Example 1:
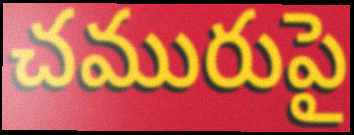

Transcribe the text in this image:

చమురుపై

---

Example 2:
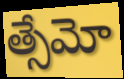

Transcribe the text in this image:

త్సేమో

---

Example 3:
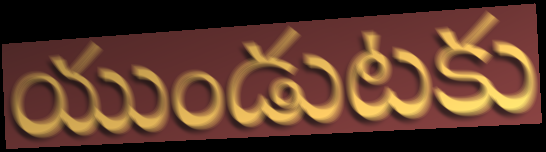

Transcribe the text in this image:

యుండుటకు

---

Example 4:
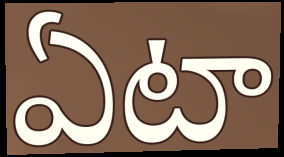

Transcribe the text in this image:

ఏటా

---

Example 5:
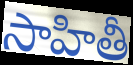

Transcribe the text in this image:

సాహితీ